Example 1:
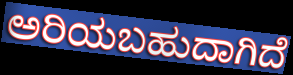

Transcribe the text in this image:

ಅರಿಯಬಹುದಾಗಿದೆ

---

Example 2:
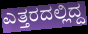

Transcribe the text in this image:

ಎತ್ತರದಲ್ಲಿದ್ದ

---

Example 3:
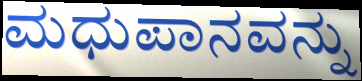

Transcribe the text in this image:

ಮಧುಪಾನವನ್ನು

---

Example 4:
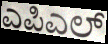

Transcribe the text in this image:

ಎಪಿಎಲ್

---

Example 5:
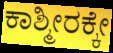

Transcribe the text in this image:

ಕಾಶ್ಮೀರಕ್ಕೇ